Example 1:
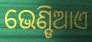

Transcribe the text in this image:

ଭେଣ୍ଡିଆଏ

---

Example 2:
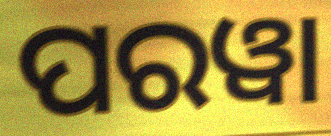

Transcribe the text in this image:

ପରୱା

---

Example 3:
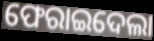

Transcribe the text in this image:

ଫେରାଇଦେଲା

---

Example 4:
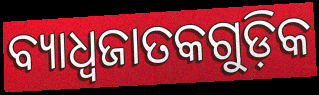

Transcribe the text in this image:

ବ୍ୟାଧ୍ଵଜାତକଗୁଡ଼ିକ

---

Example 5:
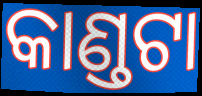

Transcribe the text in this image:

କାଣ୍ଡଟା